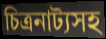
চিত্রনাট্যসহ